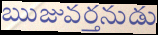
ఋజువర్తనుడు